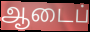
ஆடைப்